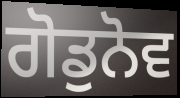
ਗੋਡੁਨੋਵ